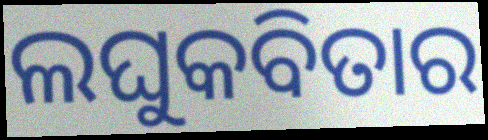
ଲଘୁକବିତାର